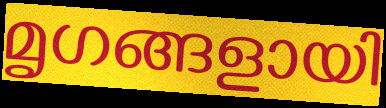
മൃഗങ്ങളായി